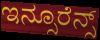
ಇನ್ಸೂರೆನ್ಸ್